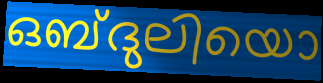
ഒബ്ദുലിയൊ